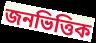
জনভিত্তিক